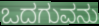
ಒದಗುವನು